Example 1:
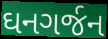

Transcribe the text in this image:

ઘનગર્જન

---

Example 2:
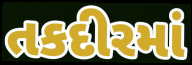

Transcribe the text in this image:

તકદીરમાં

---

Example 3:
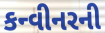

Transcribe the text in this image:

કન્વીનરની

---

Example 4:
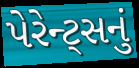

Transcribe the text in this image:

પેરેન્ટ્સનું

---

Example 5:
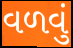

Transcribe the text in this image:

વળવું